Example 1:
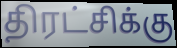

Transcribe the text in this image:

திரட்சிக்கு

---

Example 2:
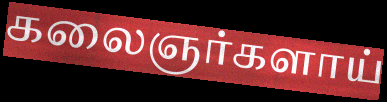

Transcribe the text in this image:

கலைஞர்களாய்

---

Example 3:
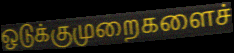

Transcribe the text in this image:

ஒடுக்குமுறைகளைச்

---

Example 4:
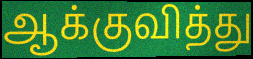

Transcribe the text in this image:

ஆக்குவித்து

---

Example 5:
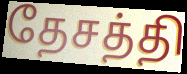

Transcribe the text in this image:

தேசத்தி